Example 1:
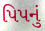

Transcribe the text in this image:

પિપનું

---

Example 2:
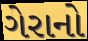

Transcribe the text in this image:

ગેરાનો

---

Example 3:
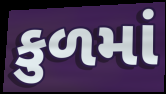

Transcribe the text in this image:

કુળમાં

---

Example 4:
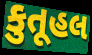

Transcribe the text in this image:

કુતૂહલ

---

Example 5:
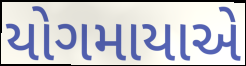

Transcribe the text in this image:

યોગમાયાએ